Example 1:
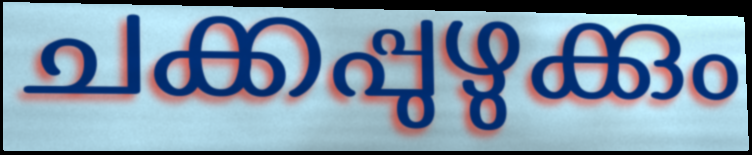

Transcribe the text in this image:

ചക്കപ്പുഴുക്കും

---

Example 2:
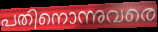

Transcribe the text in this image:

പതിനൊന്നുവരെ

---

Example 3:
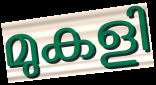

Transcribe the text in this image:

മുകളി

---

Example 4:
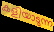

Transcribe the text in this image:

കളിയാടുന്ന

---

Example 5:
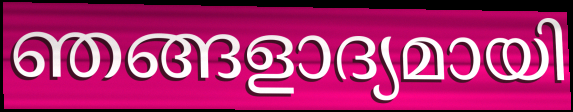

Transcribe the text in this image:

ഞങ്ങളാദ്യമായി